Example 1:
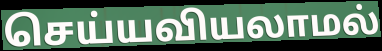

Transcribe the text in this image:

செய்யவியலாமல்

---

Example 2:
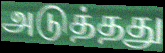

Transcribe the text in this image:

அடுத்தது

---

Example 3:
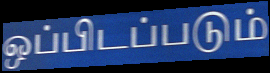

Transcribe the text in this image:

ஒப்பிடப்படும்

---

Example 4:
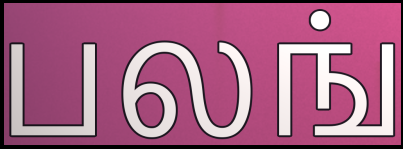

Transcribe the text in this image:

பலங்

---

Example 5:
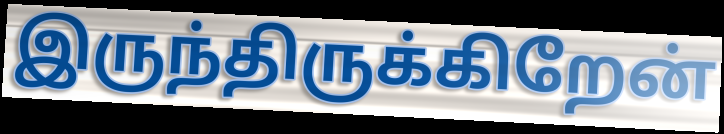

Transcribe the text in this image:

இருந்திருக்கிறேன்